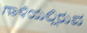
ಗಾಳಿಯಲ್ಲಿರುವ